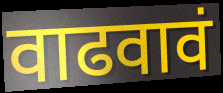
वाढवावं